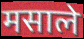
मसाले